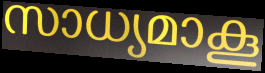
സാധ്യമാകൂ